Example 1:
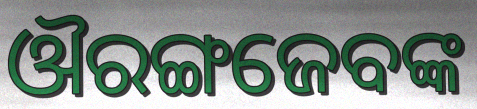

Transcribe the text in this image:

ଔରଙ୍ଗଜେବଙ୍କ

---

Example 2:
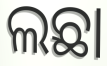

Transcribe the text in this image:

ଲଛା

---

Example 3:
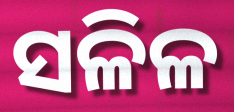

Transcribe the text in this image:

ସଳିଳ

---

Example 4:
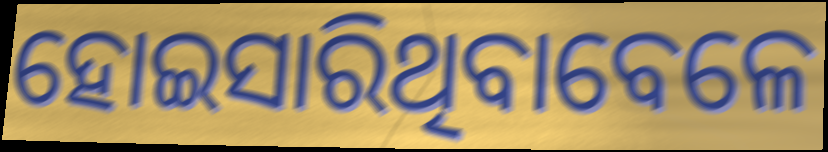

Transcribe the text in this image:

ହୋଇସାରିଥିବାବେଳେ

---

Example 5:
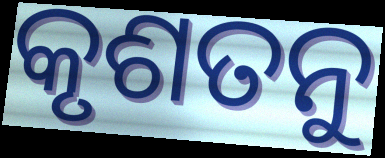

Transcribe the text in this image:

କୃଶତନୁ